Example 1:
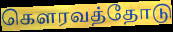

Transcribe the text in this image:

கௌரவத்தோடு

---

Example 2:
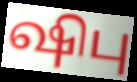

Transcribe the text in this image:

ஷிபு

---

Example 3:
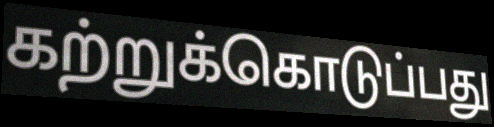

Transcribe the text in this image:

கற்றுக்கொடுப்பது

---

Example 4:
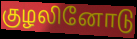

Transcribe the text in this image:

குழலினோடு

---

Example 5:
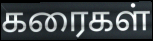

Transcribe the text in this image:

கரைகள்